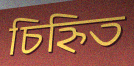
চিহ্নিত